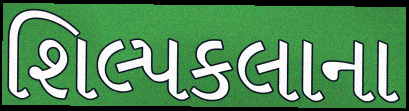
શિલ્પકલાના